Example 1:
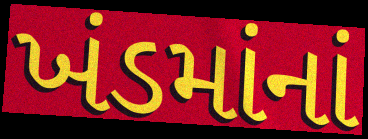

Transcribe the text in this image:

ખંડમાંનાં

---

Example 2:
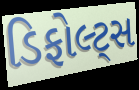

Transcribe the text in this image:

ડિફોલ્ટ્સ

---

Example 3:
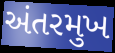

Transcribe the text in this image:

અંતરમુખ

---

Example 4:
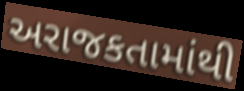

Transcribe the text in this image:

અરાજકતામાંથી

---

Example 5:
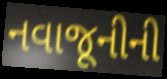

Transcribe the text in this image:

નવાજૂનીની